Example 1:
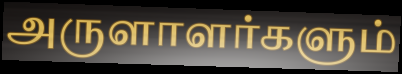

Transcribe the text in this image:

அருளாளர்களும்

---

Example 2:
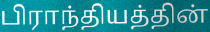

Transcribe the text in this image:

பிராந்தியத்தின்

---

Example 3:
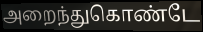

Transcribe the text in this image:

அறைந்துகொண்டே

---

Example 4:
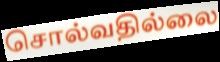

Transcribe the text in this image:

சொல்வதில்லை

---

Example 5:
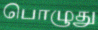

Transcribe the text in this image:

பொழுது